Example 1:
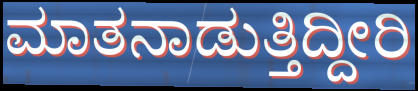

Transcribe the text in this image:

ಮಾತನಾಡುತ್ತಿದ್ದೀರಿ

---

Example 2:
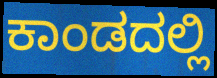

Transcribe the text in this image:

ಕಾಂಡದಲ್ಲಿ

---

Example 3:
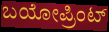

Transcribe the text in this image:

ಬಯೋಪ್ರಿಂಟ್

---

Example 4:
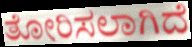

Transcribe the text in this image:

ತೋರಿಸಲಾಗಿದೆ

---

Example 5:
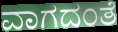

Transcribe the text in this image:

ವಾಗದಂತೆ